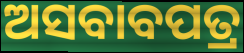
ଅସବାବପତ୍ର